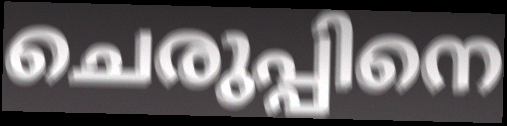
ചെരുപ്പിനെ